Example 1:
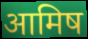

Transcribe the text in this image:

आमिष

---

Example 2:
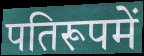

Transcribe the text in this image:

पतिरूपमें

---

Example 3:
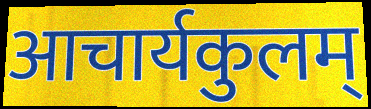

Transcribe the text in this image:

आचार्यकुलम्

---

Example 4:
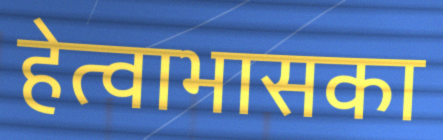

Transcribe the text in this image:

हेत्वाभासका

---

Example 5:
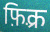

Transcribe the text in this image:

फ़िक़्र